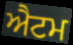
ਐਟਮ